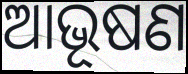
ଆଭୂଷଣ